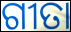
ଗୀତା